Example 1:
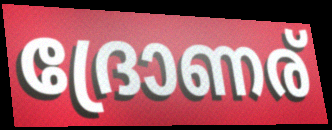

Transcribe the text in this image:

ദ്രോണര്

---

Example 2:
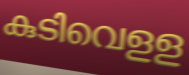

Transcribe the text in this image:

കുടിവെളള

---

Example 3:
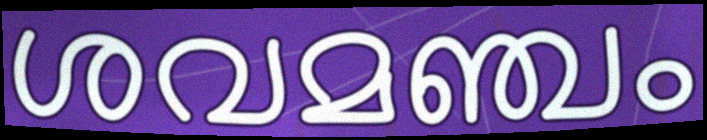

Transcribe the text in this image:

ശവമഞ്ചം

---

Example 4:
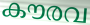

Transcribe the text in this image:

കൗരവ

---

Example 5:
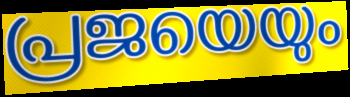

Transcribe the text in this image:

പ്രജയെയും